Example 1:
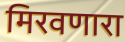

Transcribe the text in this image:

मिरवणारा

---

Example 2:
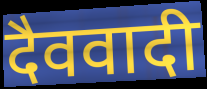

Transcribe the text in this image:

दैववादी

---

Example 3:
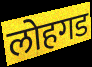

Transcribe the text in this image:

लोहगड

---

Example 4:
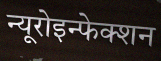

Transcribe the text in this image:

न्यूरोइन्फेक्शन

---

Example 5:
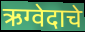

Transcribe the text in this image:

ऋग्वेदाचे